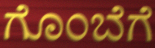
ಗೊಂಬೆಗೆ